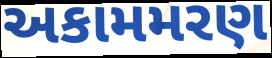
અકામમરણ